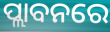
ପ୍ଲାବନରେ